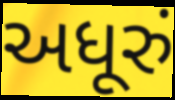
અધૂરું